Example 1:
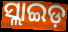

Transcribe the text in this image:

ସ୍ଲାଇଡ଼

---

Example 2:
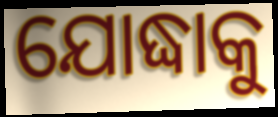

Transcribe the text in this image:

ଯୋଦ୍ଧାକୁ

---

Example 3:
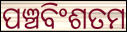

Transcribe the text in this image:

ପଞ୍ଚବିଂଶତମ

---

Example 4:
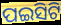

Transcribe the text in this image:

ପଇସିଟି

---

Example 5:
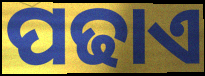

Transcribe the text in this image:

ପଢାଏ